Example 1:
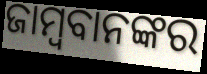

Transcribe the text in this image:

ଜାମ୍ବବାନଙ୍କର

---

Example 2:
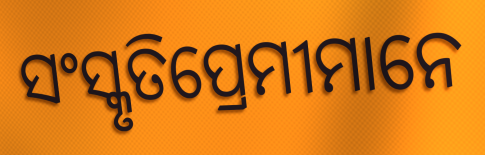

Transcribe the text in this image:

ସଂସ୍କୃତିପ୍ରେମୀମାନେ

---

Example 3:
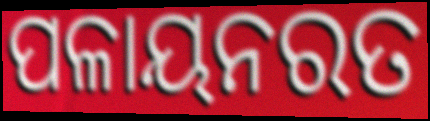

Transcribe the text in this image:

ପଳାୟନରତ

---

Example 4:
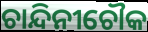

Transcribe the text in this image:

ଚାନ୍ଦିନୀଚୌକ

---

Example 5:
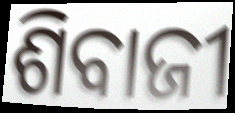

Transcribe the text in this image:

ଶିବାଜୀ